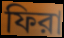
ফিরা